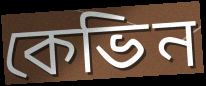
কেভিন